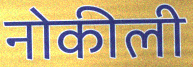
नोकीली